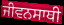
ਜੀਵਨਸਾਥੀ